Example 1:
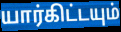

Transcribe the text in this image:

யார்கிட்டயும்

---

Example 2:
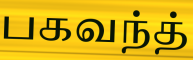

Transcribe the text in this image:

பகவந்த்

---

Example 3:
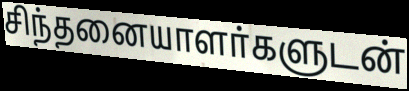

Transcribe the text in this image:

சிந்தனையாளர்களுடன்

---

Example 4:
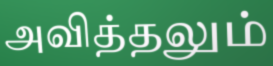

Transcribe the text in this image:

அவித்தலும்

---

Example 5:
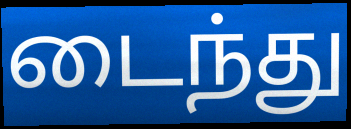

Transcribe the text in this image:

டைந்து